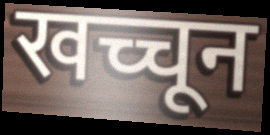
खच्चून